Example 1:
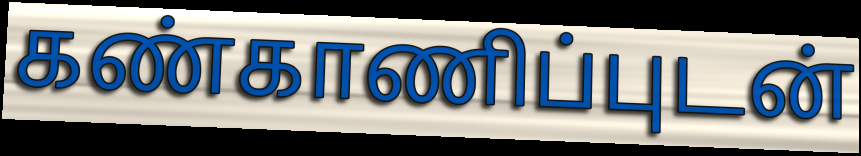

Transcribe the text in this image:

கண்காணிப்புடன்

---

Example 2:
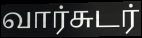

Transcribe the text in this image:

வார்சுடர்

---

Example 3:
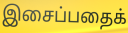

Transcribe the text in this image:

இசைப்பதைக்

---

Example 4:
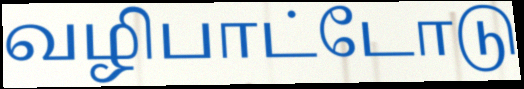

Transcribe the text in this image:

வழிபாட்டோடு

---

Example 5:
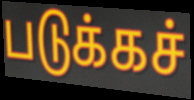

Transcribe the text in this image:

படுக்கச்